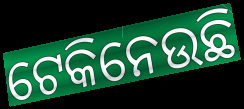
ଟେକିନେଉଛି